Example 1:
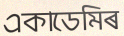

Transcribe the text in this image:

একাডেমিৰ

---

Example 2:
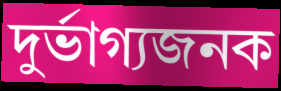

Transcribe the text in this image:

দুৰ্ভাগ্যজনক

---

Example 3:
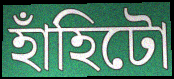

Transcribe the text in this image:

হাঁহিটো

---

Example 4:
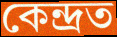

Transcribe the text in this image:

কেন্দ্ৰত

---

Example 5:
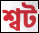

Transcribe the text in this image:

শ্বট